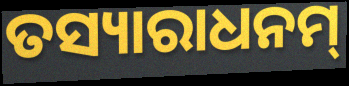
ତସ୍ୟାରାଧନମ୍